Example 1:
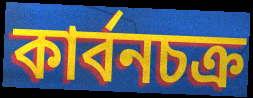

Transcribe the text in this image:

কার্বনচক্র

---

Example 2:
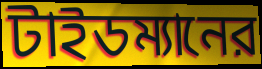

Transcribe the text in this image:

টাইডম্যানের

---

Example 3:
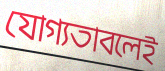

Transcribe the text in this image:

যোগ্যতাবলেই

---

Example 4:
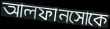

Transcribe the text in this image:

আলফানসোকে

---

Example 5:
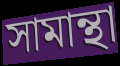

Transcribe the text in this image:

সামান্থা